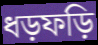
ধড়ফড়ি